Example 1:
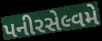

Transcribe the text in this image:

પનીરસેલ્વમે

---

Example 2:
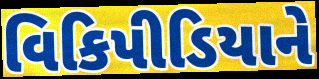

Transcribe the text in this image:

વિકિપીડિયાને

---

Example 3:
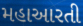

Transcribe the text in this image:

મહાઆરતી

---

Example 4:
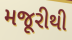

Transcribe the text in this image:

મજૂરીથી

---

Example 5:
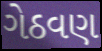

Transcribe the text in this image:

ગેઠવણ